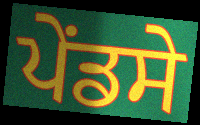
ਪੇਂਡਸੇ